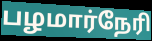
பழமார்நேரி